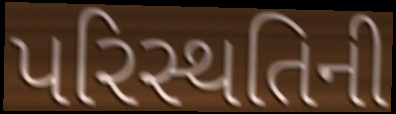
પરિસ્થતિની